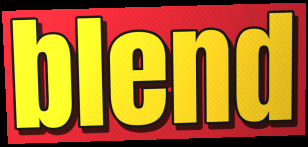
blend